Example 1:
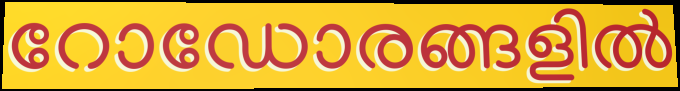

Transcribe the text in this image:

റോഡോരങ്ങളിൽ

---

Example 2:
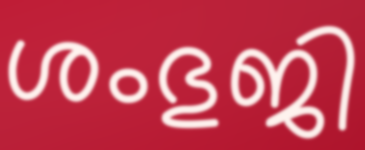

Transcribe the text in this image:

ശംഭുജി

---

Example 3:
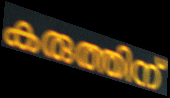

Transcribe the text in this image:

കരുത്തിന്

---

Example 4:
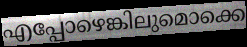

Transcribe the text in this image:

എപ്പോഴെങ്കിലുമൊക്കെ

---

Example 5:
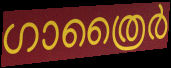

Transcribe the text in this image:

ഗാത്രൈർ